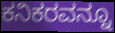
ಕನಿಕರವನ್ನೂ